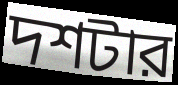
দশটার